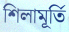
শিলামূর্তি